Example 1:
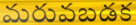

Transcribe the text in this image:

మరువబడక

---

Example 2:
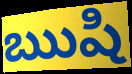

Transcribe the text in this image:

ఋషి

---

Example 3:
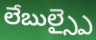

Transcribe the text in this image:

లేబుల్స్పై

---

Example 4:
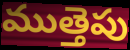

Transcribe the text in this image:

ముత్తెపు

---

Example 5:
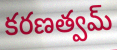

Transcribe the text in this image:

కరణత్వమ్